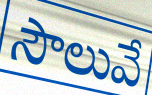
సౌలువే